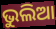
ଭୁଲିଆ